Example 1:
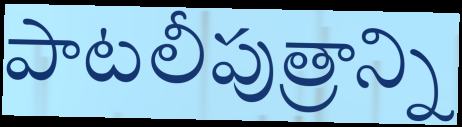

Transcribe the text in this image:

పాటలీపుత్రాన్ని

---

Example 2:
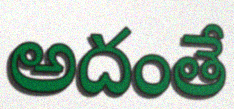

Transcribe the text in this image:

అదంతే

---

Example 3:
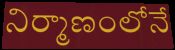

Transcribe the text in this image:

నిర్మాణంలోనే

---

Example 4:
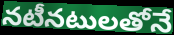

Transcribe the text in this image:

నటీనటులతోనే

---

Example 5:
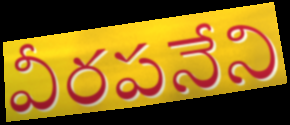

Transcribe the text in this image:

వీరపనేని